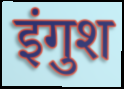
इंगुश